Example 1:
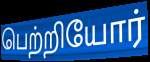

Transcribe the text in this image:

பெற்றியோர்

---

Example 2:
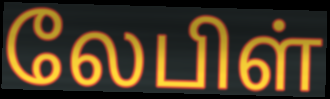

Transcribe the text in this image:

லேபிள்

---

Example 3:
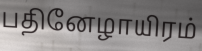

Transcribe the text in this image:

பதினேழாயிரம்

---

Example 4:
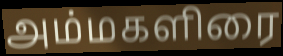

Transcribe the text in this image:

அம்மகளிரை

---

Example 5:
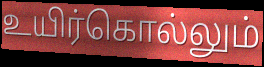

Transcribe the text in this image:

உயிர்கொல்லும்